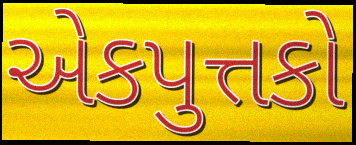
એકપુત્તકો